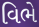
વિભે